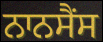
ਨਾਨਸੈਂਸ